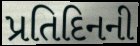
પ્રતિદિનની